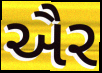
ઐર